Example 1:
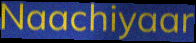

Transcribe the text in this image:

Naachiyaar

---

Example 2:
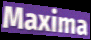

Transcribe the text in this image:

Maxima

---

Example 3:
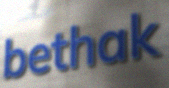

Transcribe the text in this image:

bethak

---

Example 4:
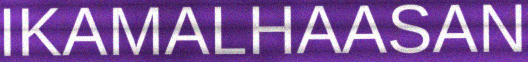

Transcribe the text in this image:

IKAMALHAASAN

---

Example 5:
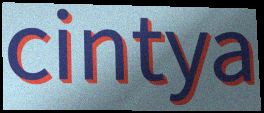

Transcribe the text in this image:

cintya